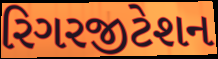
રિગરજીટેશન